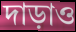
দাড়াও